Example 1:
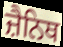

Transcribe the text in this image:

ਜ਼ੈਨਿਥ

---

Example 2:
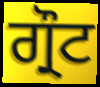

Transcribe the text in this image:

ਗ੍ਰੌਟ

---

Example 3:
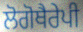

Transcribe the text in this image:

ਲੋਗੋਥੈਰੇਪੀ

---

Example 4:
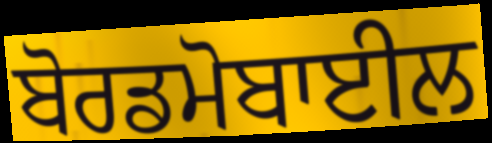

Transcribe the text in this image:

ਬੋਰਡਮੋਬਾਈਲ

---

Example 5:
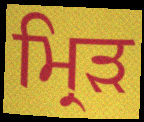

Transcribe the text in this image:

ਮ੍ਰਿੜ